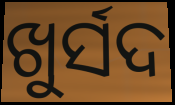
ଖୁର୍ସଦ